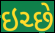
ઇચ્છે